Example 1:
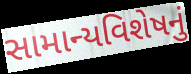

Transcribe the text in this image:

સામાન્યવિશેષનું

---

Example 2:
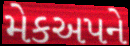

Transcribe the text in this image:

મેકઅપને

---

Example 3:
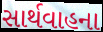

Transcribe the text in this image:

સાર્થવાહના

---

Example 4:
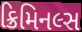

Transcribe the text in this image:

ક્રિમિનલ્સ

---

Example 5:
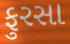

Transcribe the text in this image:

ફુરસા